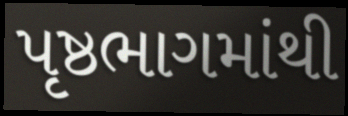
પૃષ્ઠભાગમાંથી